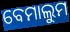
ବେମାଲୁମ